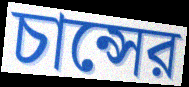
চান্সের